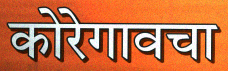
कोरेगावचा